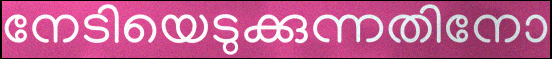
നേടിയെടുക്കുന്നതിനോ